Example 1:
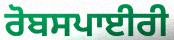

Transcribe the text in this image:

ਰੋਬਸਪਾਈਰੀ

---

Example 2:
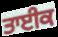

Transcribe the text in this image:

ਤਾਈਕ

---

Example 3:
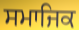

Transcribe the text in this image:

ਸਮਾਜਿਕ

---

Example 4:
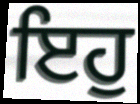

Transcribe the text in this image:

ਇਹੁ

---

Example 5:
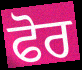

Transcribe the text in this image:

ਫੋਰ